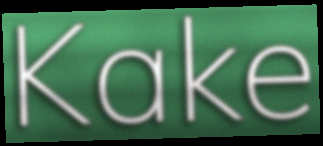
Kake